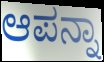
ಆಪನ್ನಾ